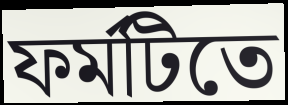
ফর্মটিতে